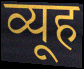
व्यूह